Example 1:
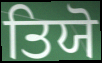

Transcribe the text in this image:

ਤਿਯੋ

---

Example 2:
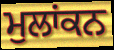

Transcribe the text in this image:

ਮੁਲਾਂਕਨ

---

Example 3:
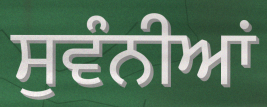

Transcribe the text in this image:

ਸੁਵੰਨੀਆਂ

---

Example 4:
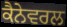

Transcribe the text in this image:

ਕੈਨੇਵਰਲ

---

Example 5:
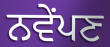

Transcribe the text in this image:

ਨਵੇਂਪਣ